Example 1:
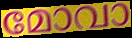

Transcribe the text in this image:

മോവാ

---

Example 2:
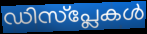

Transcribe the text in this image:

ഡിസ്പ്ലേകൾ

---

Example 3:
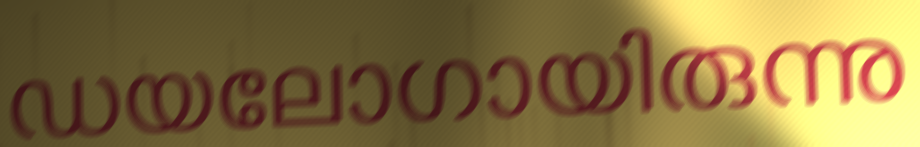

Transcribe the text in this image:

ഡയലോഗായിരുന്നു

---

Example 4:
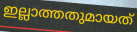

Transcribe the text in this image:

ഇല്ലാത്തതുമായത്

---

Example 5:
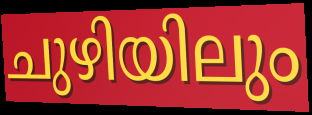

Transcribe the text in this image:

ചുഴിയിലും